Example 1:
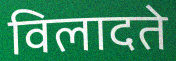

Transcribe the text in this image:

विलादते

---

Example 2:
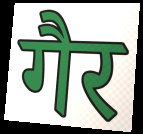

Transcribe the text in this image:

गैर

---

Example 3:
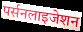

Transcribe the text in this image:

पर्सनलाइजेशन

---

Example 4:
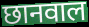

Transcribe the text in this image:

छानवाल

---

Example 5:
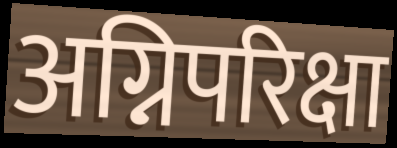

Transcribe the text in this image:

अग्निपरिक्षा